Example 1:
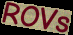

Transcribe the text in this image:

ROVs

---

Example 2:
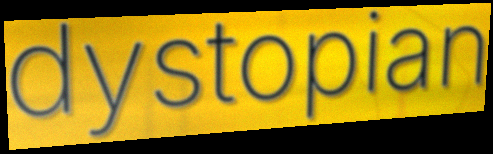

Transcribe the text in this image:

dystopian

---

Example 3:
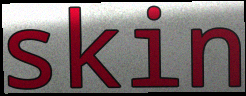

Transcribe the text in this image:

skin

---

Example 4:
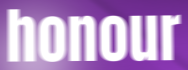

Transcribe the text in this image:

honour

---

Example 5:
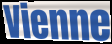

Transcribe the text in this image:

Vienne